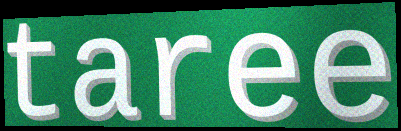
taree